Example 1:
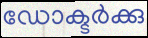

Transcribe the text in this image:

ഡോക്ടർക്കു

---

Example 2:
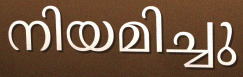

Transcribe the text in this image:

നിയമിച്ചു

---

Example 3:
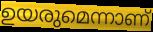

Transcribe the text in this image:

ഉയരുമെന്നാണ്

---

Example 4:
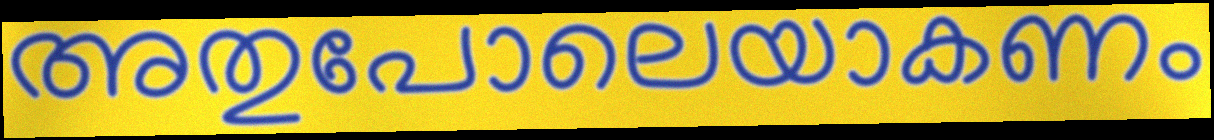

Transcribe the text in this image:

അതുപോലെയാകണം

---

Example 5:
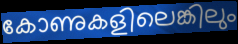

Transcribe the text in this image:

കോണുകളിലെങ്കിലും